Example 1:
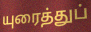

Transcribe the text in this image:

யுரைத்துப்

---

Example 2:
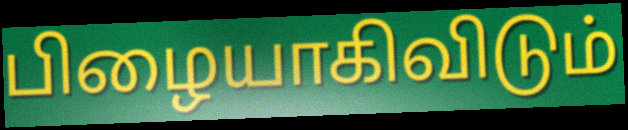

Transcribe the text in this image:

பிழையாகிவிடும்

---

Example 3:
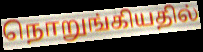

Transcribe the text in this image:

நொறுங்கியதில்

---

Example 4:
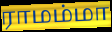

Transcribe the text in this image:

ராமம்மா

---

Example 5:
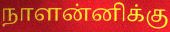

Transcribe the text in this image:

நாளன்னிக்கு